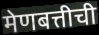
मेणबत्तीची